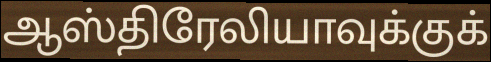
ஆஸ்திரேலியாவுக்குக்